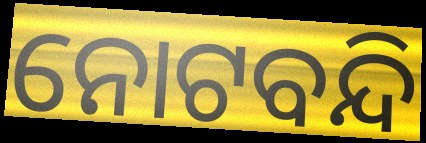
ନୋଟବନ୍ଦି